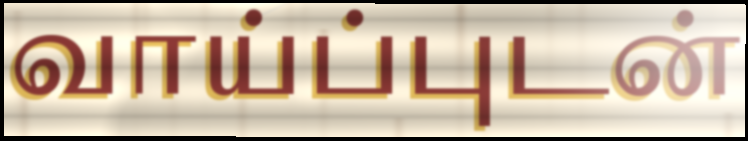
வாய்ப்புடன்